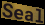
Seal